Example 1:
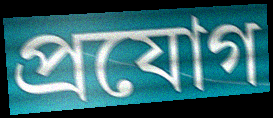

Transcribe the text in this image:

প্ৰযোগ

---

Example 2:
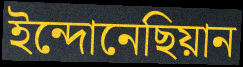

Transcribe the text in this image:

ইন্দোনেছিয়ান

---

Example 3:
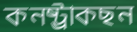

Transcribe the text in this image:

কনষ্ট্ৰাকছন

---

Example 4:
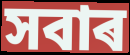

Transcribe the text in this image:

সবাৰ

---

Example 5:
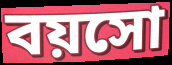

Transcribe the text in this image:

বয়সো